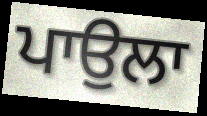
ਪਾਉਲਾ